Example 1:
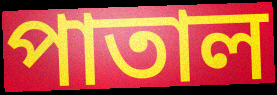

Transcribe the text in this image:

পাতাল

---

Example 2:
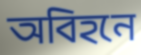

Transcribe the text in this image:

অবিহনে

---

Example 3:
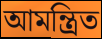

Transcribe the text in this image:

আমন্ত্ৰিত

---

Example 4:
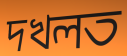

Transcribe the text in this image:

দখলত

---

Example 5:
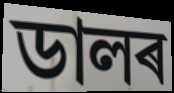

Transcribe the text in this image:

ডালৰ